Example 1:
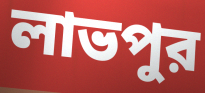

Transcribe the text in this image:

লাভপুর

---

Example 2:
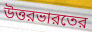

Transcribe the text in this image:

উত্তরভারতের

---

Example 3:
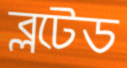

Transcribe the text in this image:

ব্লটেড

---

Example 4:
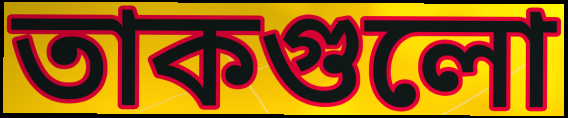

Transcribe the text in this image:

তাকগুলো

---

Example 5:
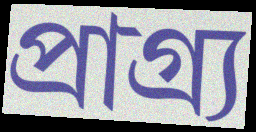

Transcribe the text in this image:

প্রাগ্র্য